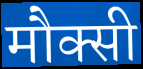
मौक्सी